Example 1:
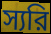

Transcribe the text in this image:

স্যরি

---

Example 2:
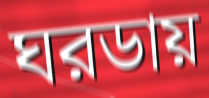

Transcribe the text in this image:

ঘরডায়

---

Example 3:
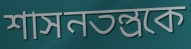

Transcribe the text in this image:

শাসনতন্ত্রকে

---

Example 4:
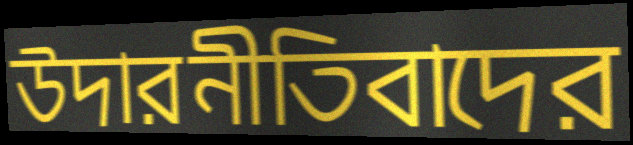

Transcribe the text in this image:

উদারনীতিবাদের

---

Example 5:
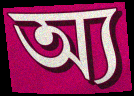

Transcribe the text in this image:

অ্য